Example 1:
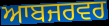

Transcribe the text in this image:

ਆਬਜਰਵਰ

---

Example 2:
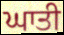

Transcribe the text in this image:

ਘਾਤੀ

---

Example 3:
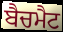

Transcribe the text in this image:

ਬੈਚਮੈਟ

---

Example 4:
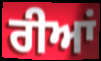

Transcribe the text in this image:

ਰੀਆਂ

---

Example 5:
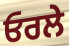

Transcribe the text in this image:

ਓਰਲੇ